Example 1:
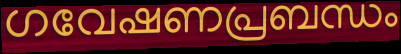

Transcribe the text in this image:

ഗവേഷണപ്രബന്ധം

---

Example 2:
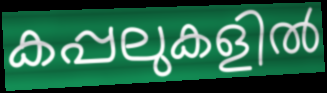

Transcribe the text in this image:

കപ്പലുകളിൽ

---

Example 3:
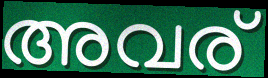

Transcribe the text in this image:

അവര്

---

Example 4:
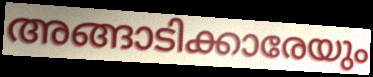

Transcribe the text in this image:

അങ്ങാടിക്കാരേയും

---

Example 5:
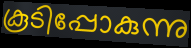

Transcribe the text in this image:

കൂടിപ്പോകുന്നു